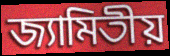
জ্যামিতীয়